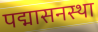
पद्मासनस्था